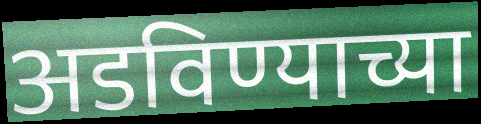
अडविण्याच्या